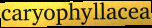
caryophyllacea